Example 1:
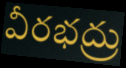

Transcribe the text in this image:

వీరభద్రు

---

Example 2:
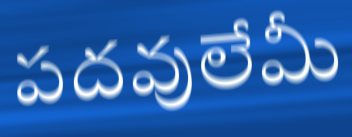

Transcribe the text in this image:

పదవులేమీ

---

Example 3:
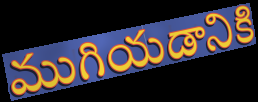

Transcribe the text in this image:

ముగియడానికి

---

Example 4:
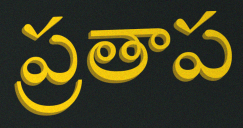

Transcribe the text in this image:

ప్రతాప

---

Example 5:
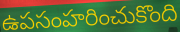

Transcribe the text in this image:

ఉపసంహరించుకొంది